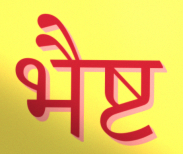
भैष्ट